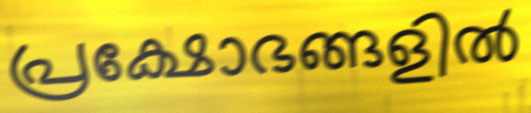
പ്രക്ഷോഭങ്ങളിൽ